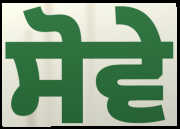
ਸੋਵੇ